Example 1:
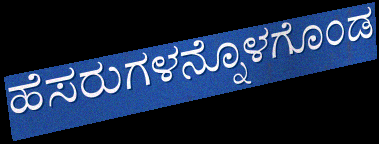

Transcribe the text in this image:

ಹೆಸರುಗಳನ್ನೊಳಗೊಂಡ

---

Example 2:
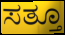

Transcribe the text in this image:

ಸತ್ತೂ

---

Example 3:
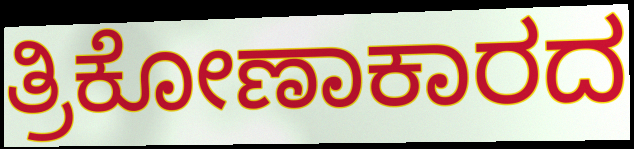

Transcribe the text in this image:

ತ್ರಿಕೋಣಾಕಾರದ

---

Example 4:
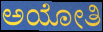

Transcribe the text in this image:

ಅಯೋತಿ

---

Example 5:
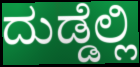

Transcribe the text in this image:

ದುಡ್ಡೆಲ್ಲಿ